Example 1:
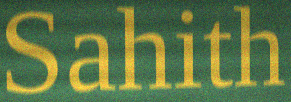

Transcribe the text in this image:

Sahith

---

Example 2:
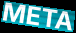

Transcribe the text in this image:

META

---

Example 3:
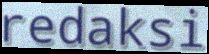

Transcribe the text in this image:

redaksi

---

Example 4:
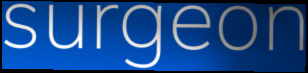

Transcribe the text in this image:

surgeon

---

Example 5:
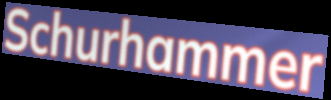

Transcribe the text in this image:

Schurhammer